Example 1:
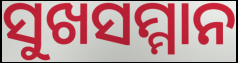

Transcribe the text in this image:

ସୁଖସମ୍ମାନ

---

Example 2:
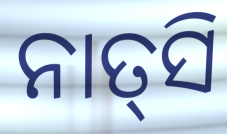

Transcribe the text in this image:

ନାତ୍‌ସି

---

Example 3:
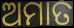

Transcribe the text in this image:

ଅମାତ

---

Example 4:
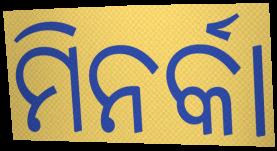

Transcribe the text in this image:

ମିନର୍କା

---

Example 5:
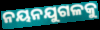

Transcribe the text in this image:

ନୟନଯୁଗଳକୁ